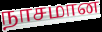
நாசமான